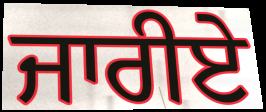
ਜਾਰੀਏ